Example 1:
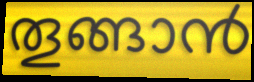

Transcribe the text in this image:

തൂങ്ങാൻ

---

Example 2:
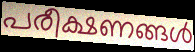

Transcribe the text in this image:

പരീക്ഷണങ്ങൾ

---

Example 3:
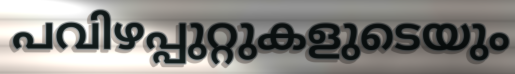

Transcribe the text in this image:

പവിഴപ്പുറ്റുകളുടെയും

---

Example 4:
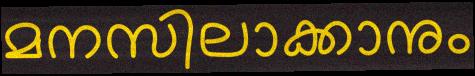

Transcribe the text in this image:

മനസിലാക്കാനും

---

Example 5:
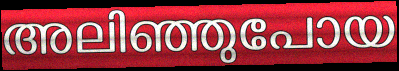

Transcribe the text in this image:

അലിഞ്ഞുപോയ